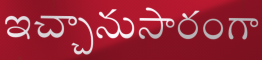
ఇచ్చానుసారంగా